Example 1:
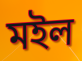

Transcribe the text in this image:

মইল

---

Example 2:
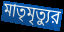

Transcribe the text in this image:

মাতৃমৃত্যুর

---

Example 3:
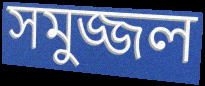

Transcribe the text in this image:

সমুজ্জল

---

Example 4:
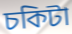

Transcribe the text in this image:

চকিটা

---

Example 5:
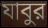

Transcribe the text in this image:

যাবুর